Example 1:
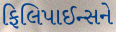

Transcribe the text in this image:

ફિલિપાઈન્સને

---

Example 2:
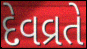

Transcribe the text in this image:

દેવવ્રતે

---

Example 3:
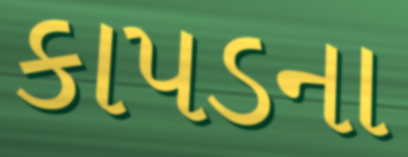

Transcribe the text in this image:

કાપડના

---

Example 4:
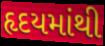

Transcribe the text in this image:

હૃદયમાંથી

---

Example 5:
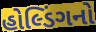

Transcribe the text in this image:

હોલ્ડિંગનો